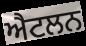
ਐਟਲਨ